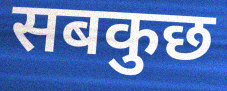
सबकुछ